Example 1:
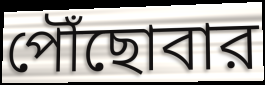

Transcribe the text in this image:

পৌঁছোবার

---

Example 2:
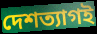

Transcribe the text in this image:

দেশত্যাগই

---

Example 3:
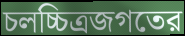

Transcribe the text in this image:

চলচ্চিত্রজগতের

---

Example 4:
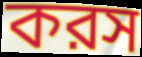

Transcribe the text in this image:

করস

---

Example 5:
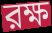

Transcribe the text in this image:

রক্ষ